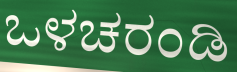
ಒಳಚರಂಡಿ